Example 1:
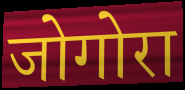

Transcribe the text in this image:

जोगोरा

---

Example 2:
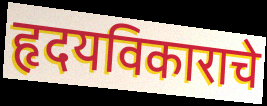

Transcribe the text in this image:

हृदयविकाराचे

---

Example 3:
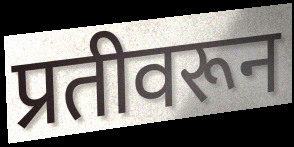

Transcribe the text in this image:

प्रतीवरून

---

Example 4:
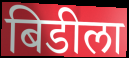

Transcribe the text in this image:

बिडीला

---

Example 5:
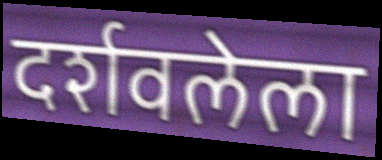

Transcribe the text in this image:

दर्शवलेला